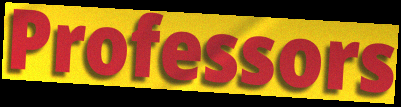
Professors